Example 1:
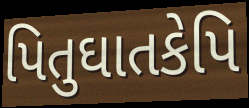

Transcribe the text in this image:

પિતુઘાતકેપિ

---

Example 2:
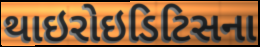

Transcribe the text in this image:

થાઇરોઇડિટિસના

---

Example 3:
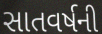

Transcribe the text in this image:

સાતવર્ષની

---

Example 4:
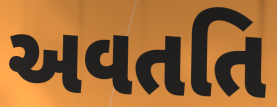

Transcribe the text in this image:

અવતતિ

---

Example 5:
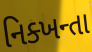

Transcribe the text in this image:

નિક્ખન્તા